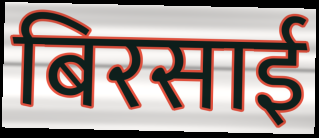
बिरसाई